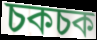
চকচক